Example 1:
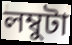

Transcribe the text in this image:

লম্বুটা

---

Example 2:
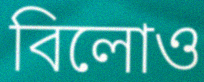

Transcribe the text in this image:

বিলোও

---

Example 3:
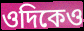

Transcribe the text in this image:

ওদিকেও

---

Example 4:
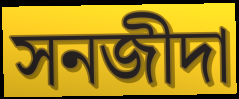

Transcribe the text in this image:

সনজীদা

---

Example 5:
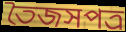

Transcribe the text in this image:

তৈজসপত্র